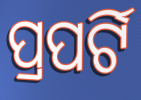
ପ୍ରପର୍ଟି